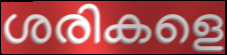
ശരികളെ